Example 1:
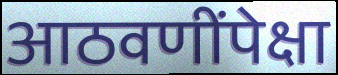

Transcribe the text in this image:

आठवणींपेक्षा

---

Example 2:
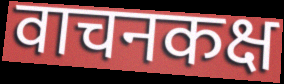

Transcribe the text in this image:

वाचनकक्ष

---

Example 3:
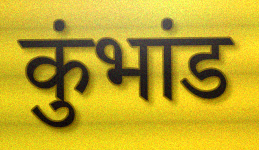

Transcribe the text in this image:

कुंभांड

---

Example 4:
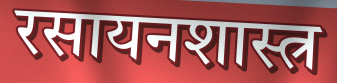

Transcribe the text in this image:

रसायनशास्त्र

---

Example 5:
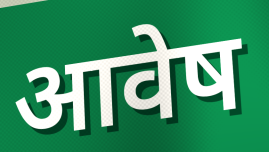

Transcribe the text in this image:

आवेष